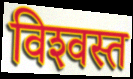
विश्‍वस्त